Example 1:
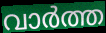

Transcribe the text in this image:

വാർത്ത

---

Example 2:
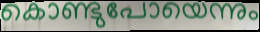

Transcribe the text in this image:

കൊണ്ടുപോയെന്നും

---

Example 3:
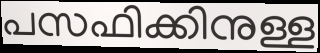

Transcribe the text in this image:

പസഫിക്കിനുള്ള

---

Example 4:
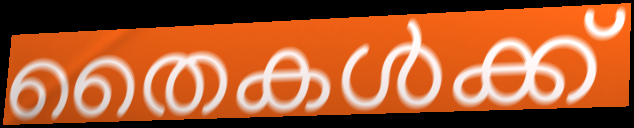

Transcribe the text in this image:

തൈകൾക്ക്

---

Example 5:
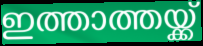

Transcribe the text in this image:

ഇത്താത്തയ്ക്ക്